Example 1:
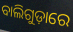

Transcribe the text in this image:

ବାଲିଗୁଡ଼ାରେ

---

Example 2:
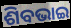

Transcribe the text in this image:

ଶିବଭାଇ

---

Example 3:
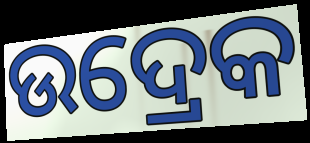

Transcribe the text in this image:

ଉଦ୍ରେକ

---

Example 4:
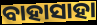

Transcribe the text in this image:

ବାହାସାହା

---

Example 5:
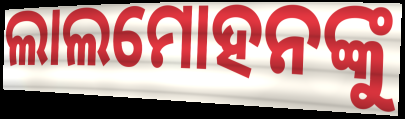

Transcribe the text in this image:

ଲାଲମୋହନଙ୍କୁ